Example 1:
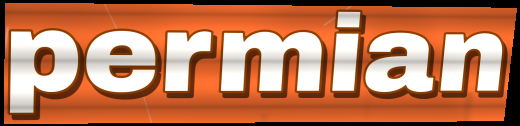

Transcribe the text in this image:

permian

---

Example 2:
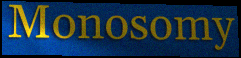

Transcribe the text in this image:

Monosomy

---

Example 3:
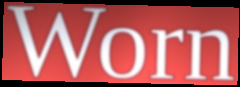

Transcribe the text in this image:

Worn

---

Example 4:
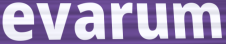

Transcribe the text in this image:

evarum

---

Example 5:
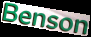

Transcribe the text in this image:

Benson